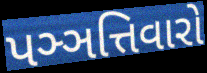
પઞ્ઞત્તિવારો